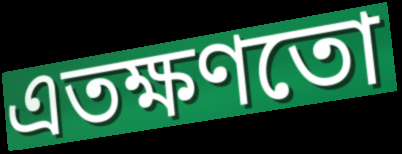
এতক্ষণতো